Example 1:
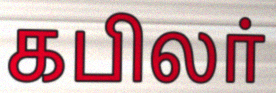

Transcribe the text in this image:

கபிலர்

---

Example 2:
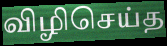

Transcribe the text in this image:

விழிசெய்த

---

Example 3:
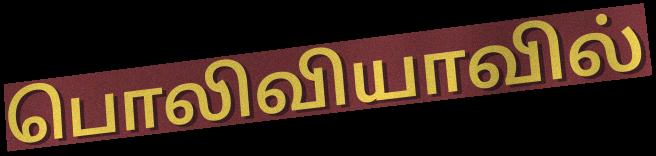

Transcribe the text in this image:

பொலிவியாவில்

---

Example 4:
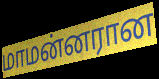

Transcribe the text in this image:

மாமன்னரான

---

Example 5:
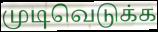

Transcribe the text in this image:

முடிவெடுக்க